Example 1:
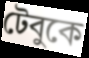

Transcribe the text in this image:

টেবুকে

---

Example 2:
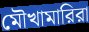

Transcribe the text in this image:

মৌখামারিরা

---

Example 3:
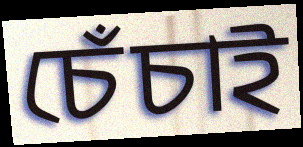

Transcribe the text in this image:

চেঁচাই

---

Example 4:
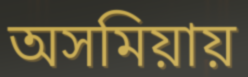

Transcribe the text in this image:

অসমিয়ায়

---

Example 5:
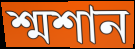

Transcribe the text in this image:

শ্মশান